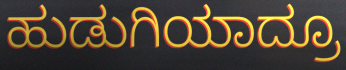
ಹುಡುಗಿಯಾದ್ರೂ